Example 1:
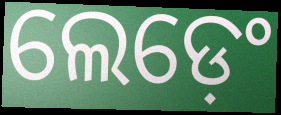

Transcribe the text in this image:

ଲେଡ଼େଂ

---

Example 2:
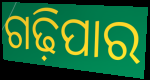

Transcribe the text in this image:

ଗଢ଼ିପାର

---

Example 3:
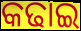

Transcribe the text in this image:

କଢାଇ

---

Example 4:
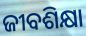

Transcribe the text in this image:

ଜୀବଶିକ୍ଷା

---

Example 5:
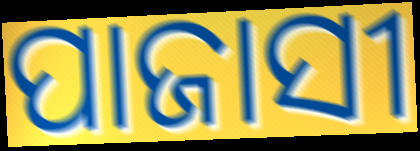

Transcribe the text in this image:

ପାଜାସୀ